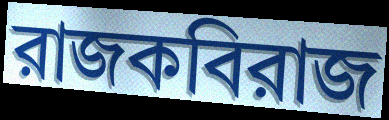
রাজকবিরাজ